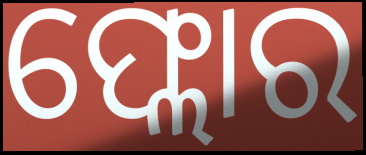
ଫ୍ଲୋର